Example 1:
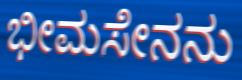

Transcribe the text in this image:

ಭೀಮಸೇನನು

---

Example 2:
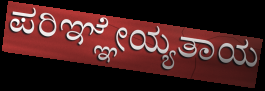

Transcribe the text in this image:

ಪರಿಞ್ಞೇಯ್ಯತಾಯ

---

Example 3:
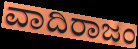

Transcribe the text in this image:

ವಾದಿರಾಜಂ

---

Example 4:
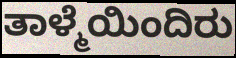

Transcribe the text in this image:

ತಾಳ್ಮೆಯಿಂದಿರು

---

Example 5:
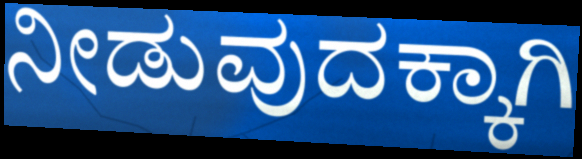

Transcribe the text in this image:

ನೀಡುವುದಕ್ಕಾಗಿ